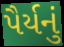
પૈર્યનું